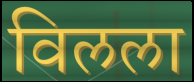
विलला